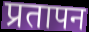
प्रतापन